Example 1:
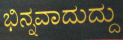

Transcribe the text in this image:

ಭಿನ್ನವಾದುದ್ದು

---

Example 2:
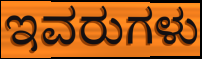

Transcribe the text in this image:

ಇವರುಗಳು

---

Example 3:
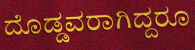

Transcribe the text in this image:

ದೊಡ್ಡವರಾಗಿದ್ದರೂ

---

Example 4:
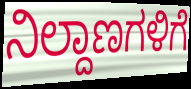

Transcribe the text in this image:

ನಿಲ್ದಾಣಗಳಿಗೆ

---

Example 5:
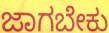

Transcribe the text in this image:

ಜಾಗಬೇಕು